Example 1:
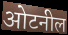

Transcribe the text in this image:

ओटनील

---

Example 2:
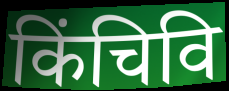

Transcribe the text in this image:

किंचिवि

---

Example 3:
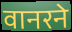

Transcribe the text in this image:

वानरने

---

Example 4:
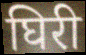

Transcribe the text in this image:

घिरी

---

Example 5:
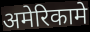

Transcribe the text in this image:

अमेरिकामे